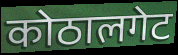
कोठालगेट